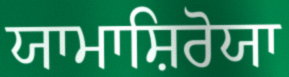
ਯਾਮਾਸ਼ਿਰੋਯਾ